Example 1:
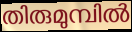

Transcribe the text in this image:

തിരുമുമ്പിൽ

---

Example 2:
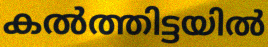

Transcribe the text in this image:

കൽത്തിട്ടയിൽ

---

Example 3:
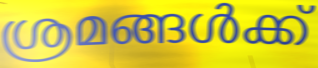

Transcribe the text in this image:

ശ്രമങ്ങൾക്ക്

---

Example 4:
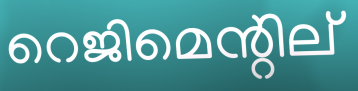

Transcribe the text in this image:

റെജിമെന്റില്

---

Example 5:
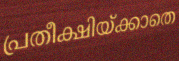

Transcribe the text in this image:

പ്രതീക്ഷിയ്ക്കാതെ